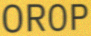
OROP